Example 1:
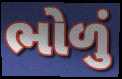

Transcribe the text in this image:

ભોળું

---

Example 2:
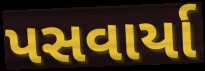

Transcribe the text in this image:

પસવાર્યા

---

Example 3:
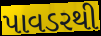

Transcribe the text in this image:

પાવડરથી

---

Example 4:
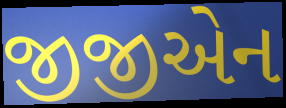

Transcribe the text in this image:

જીજીએન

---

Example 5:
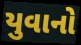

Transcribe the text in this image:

યુવાનો